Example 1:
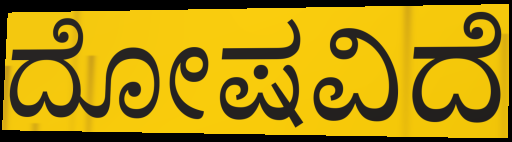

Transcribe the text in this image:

ದೋಷವಿದೆ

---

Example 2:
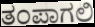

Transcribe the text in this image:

ತಂಪಾಗಲಿ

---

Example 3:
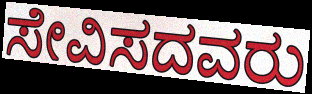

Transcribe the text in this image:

ಸೇವಿಸದವರು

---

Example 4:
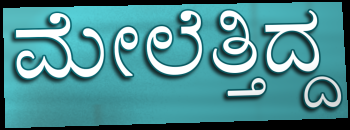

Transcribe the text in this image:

ಮೇಲೆತ್ತಿದ್ದ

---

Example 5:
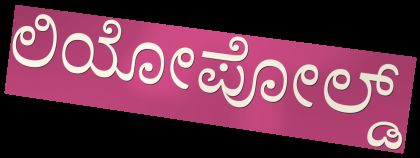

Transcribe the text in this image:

ಲಿಯೋಪೋಲ್ಡ್